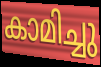
കാമിച്ചു